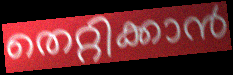
തെറ്റിക്കാൻ